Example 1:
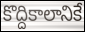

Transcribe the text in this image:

కొద్దికాలానికే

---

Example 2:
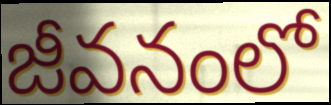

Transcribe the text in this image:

జీవనంలో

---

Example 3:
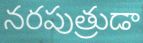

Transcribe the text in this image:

నరపుత్రుడా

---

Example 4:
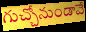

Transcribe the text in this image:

గుచ్చోనుండావే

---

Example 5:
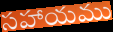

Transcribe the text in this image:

సహాయము